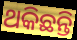
ଥକିଛନ୍ତି